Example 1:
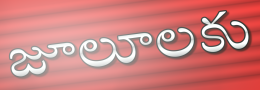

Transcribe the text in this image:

జూలూలకు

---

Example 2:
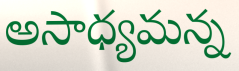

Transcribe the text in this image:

అసాధ్యమన్న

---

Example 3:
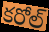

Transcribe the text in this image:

కరోల్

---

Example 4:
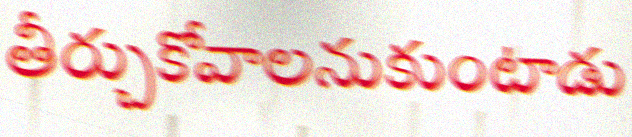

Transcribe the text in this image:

తీర్చుకోవాలనుకుంటాడు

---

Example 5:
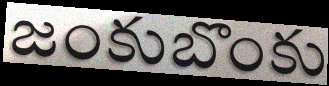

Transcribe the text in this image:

జంకుబొంకు